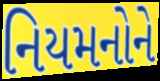
નિયમનોને